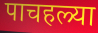
पाचहल्या